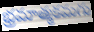
భ్రమాత్మకమగు